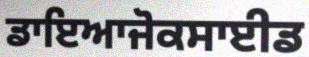
ਡਾਇਆਜੋਕਸਾਈਡ